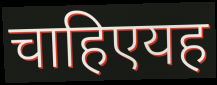
चाहिएयह